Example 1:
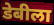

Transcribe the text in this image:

डेबीला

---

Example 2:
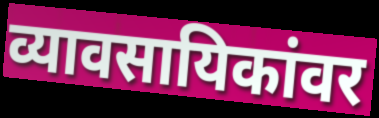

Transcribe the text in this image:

व्यावसायिकांवर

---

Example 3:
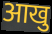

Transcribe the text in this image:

आखु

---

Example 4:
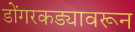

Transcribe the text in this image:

डोंगरकड्यावरून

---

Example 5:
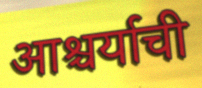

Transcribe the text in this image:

आश्चर्याची